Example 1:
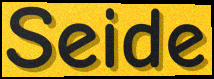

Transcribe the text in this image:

Seide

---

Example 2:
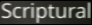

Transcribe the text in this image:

Scriptural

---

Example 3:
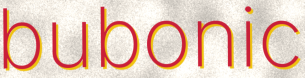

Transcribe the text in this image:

bubonic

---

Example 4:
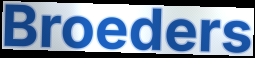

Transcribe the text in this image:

Broeders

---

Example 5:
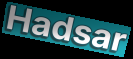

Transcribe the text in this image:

Hadsar